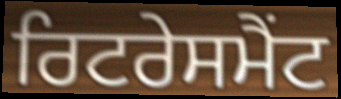
ਰਿਟਰੇਸਮੈਂਟ